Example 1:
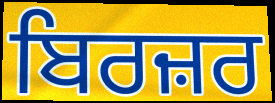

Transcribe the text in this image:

ਬਿਰਜ਼ਰ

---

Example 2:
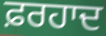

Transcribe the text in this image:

ਫ਼ਰਹਾਦ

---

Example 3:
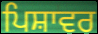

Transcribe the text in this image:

ਪਿਸ਼ਾਵਰ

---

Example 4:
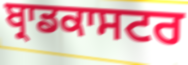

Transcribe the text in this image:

ਬ੍ਰਾਡਕਾਸਟਰ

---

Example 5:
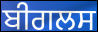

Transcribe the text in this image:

ਬੀਗਲਸ